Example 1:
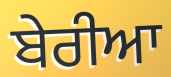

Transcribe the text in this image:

ਬੇਰੀਆ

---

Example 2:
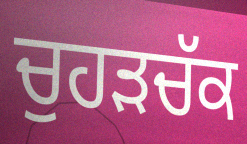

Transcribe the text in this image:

ਚੁਹੜਚੱਕ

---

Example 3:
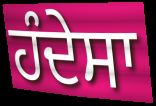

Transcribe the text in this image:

ਹੰਦੇਸਾ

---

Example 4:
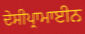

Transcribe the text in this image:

ਦੇਸੀਪ੍ਰਾਮਾਈਨ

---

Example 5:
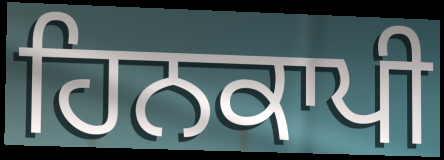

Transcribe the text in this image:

ਹਿਨਕਾਪੀ